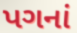
પગનાં